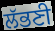
ਲੱਭਣੀ